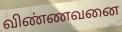
விண்ணவனை